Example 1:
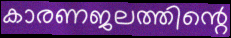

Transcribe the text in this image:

കാരണജലത്തിന്റെ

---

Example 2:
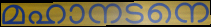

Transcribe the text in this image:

മഹാനടനെ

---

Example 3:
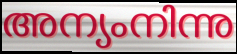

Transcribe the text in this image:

അന്യംനിന്നു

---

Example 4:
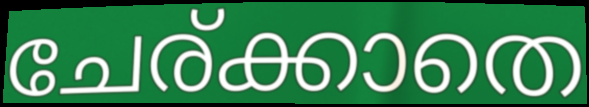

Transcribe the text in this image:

ചേര്ക്കാതെ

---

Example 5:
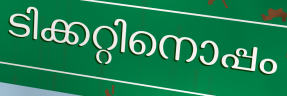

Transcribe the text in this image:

ടിക്കറ്റിനൊപ്പം